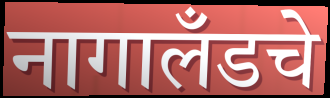
नागालँडचे